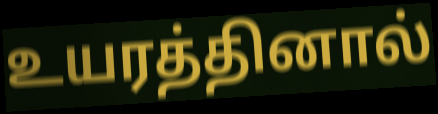
உயரத்தினால்